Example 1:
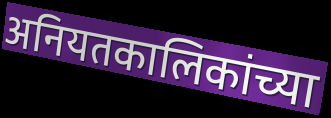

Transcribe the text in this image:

अनियतकालिकांच्या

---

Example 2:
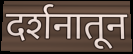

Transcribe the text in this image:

दर्शनातून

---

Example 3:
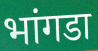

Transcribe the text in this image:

भांगडा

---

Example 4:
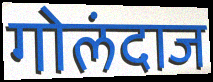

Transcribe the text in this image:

गोलंदाज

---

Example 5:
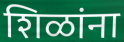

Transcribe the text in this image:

शिळांना